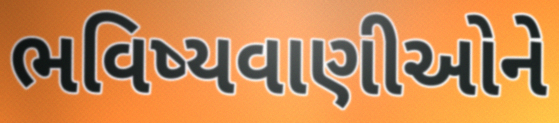
ભવિષ્યવાણીઓને